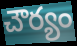
చౌర్యం